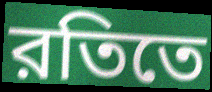
রতিতে